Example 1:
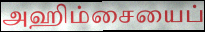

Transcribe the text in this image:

அஹிம்சையைப்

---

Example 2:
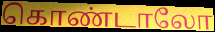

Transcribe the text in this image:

கொண்டாலோ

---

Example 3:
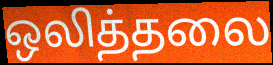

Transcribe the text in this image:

ஒலித்தலை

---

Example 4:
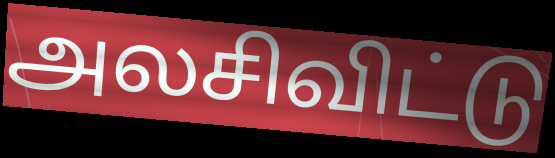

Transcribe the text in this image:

அலசிவிட்டு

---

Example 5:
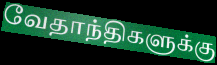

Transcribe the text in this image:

வேதாந்திகளுக்கு